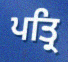
ਪਤ੍ਰਿ